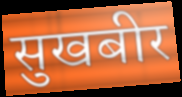
सुखबीर